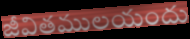
జీవితములయందు